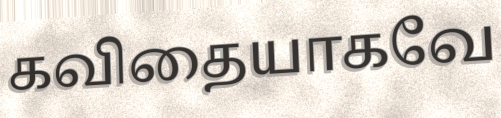
கவிதையாகவே